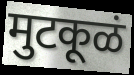
मुटकूळं